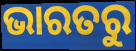
ଭାରତରୁ